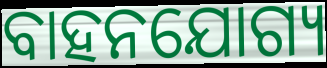
ବାହନଯୋଗ୍ୟ